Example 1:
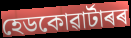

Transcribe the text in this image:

হেডকোৱাৰ্টাৰৰ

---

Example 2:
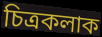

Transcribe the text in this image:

চিত্ৰকলাক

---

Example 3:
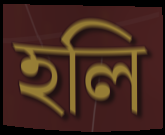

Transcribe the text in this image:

হলি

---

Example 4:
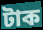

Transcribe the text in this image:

টাক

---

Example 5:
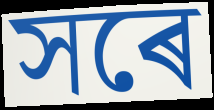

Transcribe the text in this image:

সৰে